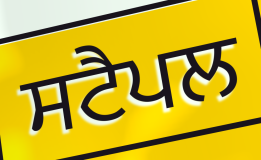
ਸਟੈਪਲ